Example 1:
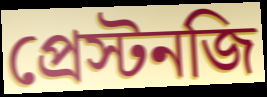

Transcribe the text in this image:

প্রেস্টনজি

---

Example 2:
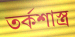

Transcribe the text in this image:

তর্কশাস্ত্র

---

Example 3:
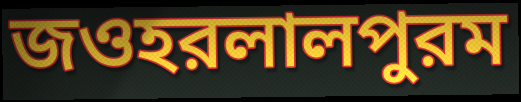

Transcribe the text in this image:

জওহরলালপুরম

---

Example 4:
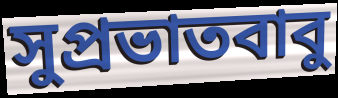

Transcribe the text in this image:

সুপ্রভাতবাবু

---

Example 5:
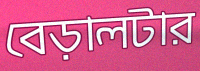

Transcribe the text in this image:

বেড়ালটার